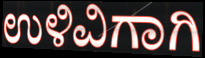
ಉಳಿವಿಗಾಗಿ